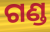
ଗଣ୍ଡ